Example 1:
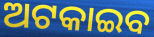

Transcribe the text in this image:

ଅଟକାଇବ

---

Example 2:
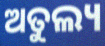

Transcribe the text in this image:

ଅତୁଲ୍ୟ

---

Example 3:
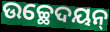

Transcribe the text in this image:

ଉଚ୍ଛେଦୟନ୍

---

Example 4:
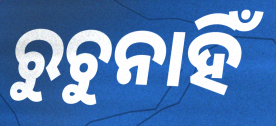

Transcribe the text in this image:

ରୁଚୁନାହିଁ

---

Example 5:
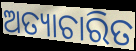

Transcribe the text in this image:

ଅତ୍ୟାଚାରିତ